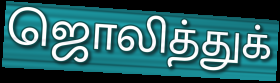
ஜொலித்துக்